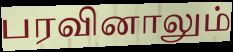
பரவினாலும்